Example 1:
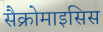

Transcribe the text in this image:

सैक्रोमाइसिस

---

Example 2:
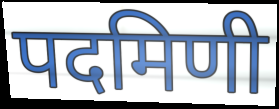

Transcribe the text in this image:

पदमिणी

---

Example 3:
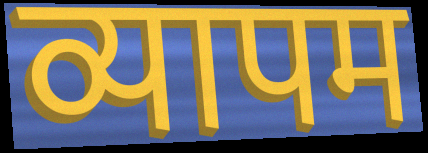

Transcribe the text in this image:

व्यापम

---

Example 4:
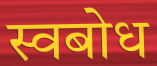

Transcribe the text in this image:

स्वबोध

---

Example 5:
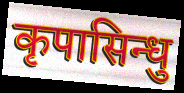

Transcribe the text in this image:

कृपासिन्धु